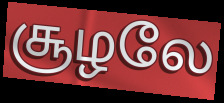
சூழலே